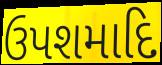
ઉપશમાદિ